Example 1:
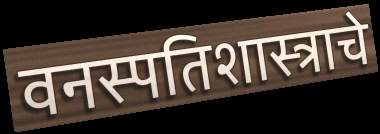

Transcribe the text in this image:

वनस्पतिशास्त्राचे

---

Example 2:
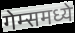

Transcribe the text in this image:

गेम्समध्ये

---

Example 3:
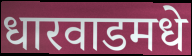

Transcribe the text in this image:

धारवाडमधे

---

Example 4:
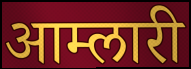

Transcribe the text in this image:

आम्लारी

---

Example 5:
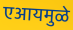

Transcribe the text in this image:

एआयमुळे